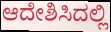
ಆದೇಶಿಸಿದಲ್ಲಿ